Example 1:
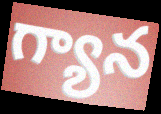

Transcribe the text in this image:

గ్యాన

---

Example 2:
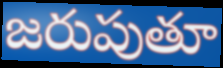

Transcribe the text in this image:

జరుపుతూ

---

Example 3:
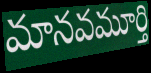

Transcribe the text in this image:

మానవమూర్తి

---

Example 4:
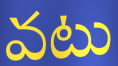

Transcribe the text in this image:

వటు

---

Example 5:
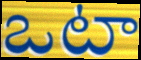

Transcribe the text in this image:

ఒటా